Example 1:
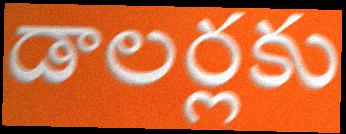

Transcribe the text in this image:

డాలర్లకు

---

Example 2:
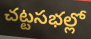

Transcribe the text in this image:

చట్టసభల్లో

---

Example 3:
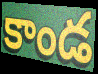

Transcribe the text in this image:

కాండ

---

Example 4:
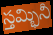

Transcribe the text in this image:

స్తమ్భినీ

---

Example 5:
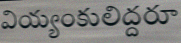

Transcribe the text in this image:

వియ్యంకులిద్దరూ